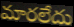
మారలేదు